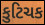
કુટિચક